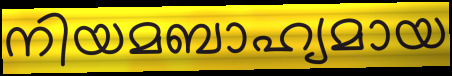
നിയമബാഹ്യമായ